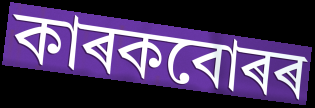
কাৰকবোৰৰ